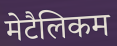
मेटैलिकम